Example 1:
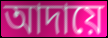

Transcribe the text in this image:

আদায়ে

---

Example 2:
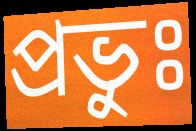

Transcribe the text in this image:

প্রভুঃ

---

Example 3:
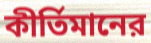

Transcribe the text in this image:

কীর্তিমানের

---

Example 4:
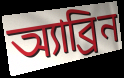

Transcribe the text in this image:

অ্যাব্রিন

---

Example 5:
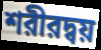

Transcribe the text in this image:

শরীরদ্বয়